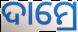
ଦାମ୍ରେ